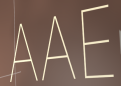
AAE